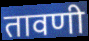
तावणी